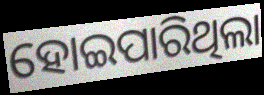
ହୋଇପାରିଥିଲା